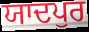
ਯਾਦਪੁਰ